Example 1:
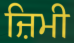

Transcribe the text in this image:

ਜ਼ਿਮੀ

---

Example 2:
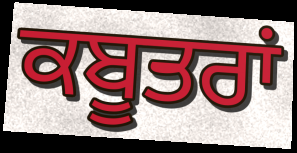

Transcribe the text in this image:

ਕਬੂਤਰਾਂ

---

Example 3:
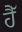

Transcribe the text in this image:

ਹੈੱ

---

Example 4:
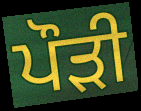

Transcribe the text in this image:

ਪੌੜੀ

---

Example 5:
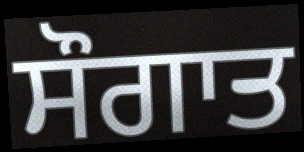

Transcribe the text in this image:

ਸੌਗਾਤ